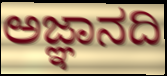
ಅಜ್ಞಾನದಿ